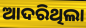
ଆଦରିଥିଲା